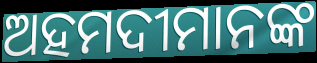
ଅହମଦୀମାନଙ୍କ